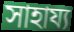
সাহায্য